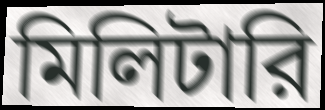
মিলিটারি